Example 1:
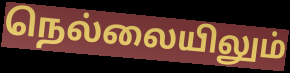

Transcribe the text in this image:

நெல்லையிலும்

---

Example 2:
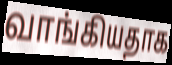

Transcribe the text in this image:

வாங்கியதாக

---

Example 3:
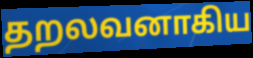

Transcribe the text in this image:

தறலவனாகிய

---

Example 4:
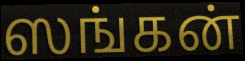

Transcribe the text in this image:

ஸங்கன்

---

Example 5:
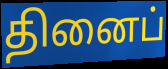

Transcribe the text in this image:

தினைப்